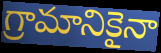
గ్రామానికైనా